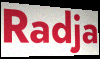
Radja